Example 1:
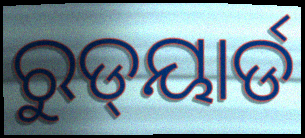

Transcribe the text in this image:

ରୁଡ୍‌ୟାର୍ଡ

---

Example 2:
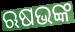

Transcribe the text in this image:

ଋଷଭଙ୍କ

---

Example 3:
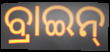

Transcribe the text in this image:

ବ୍ରାଇନ୍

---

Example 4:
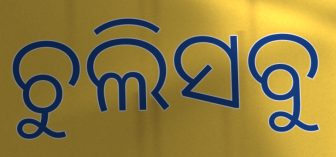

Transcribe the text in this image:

ଚୁଲିସବୁ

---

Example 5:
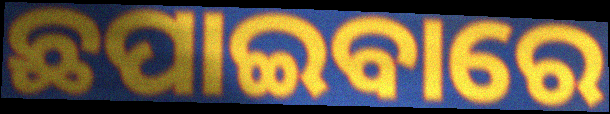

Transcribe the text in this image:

ଛପାଇବାରେ